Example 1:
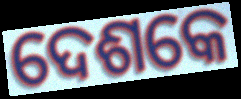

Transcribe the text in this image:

ଦେଶକେ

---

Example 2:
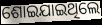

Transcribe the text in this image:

ଶୋଇଯାଇଥିଲେ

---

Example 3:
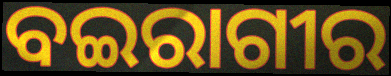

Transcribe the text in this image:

ବଇରାଗୀର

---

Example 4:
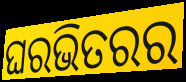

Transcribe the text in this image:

ଘରଭିତରର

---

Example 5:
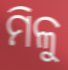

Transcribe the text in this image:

ମିଳୁ